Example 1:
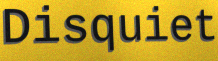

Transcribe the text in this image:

Disquiet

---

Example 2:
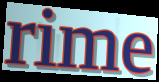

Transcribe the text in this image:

rime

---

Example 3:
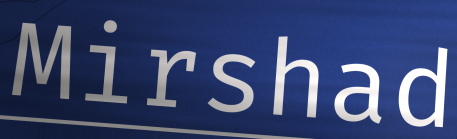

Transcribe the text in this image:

Mirshad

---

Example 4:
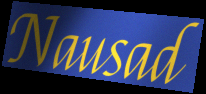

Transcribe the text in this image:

Nausad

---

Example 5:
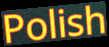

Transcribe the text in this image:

Polish